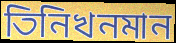
তিনিখনমান